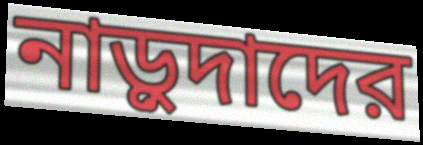
নাড়ুদাদের